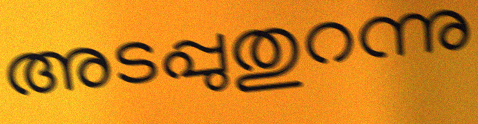
അടപ്പുതുറന്നു